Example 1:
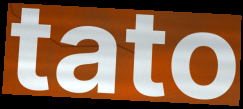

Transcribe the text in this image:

tato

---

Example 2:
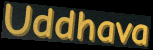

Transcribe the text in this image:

Uddhava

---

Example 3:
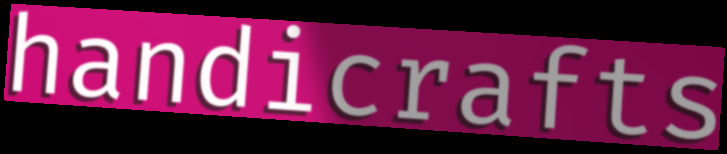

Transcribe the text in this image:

handicrafts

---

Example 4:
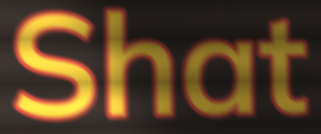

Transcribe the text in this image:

Shat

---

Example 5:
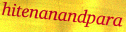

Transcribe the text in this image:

hitenanandpara